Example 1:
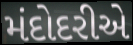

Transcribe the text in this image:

મંદોદરીએ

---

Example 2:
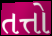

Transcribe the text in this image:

તત્તો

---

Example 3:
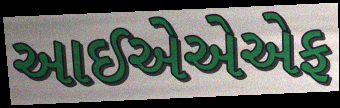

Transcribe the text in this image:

આઈએએએફ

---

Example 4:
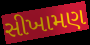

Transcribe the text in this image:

સીખામણ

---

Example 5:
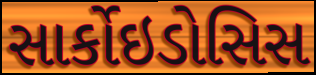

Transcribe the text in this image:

સાર્કોઇડોસિસ